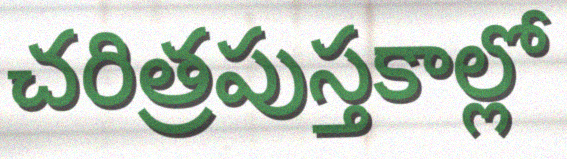
చరిత్రపుస్తకాల్లో